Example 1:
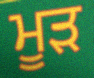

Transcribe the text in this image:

ਮੂੜ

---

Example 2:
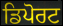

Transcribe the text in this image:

ਡਿਪੋਰਟ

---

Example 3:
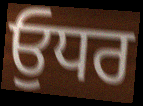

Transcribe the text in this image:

ਓੁਧਰ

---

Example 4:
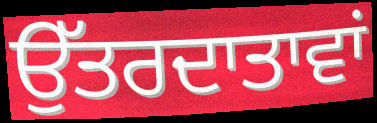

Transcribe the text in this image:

ਉੱਤਰਦਾਤਾਵਾਂ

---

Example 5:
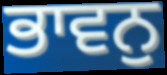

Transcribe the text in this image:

ਭਾਵਨੁ